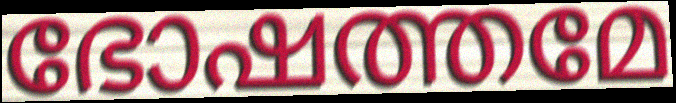
ഭോഷത്തമേ